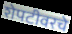
शेपटीवरचे